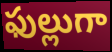
ఫుల్లుగా